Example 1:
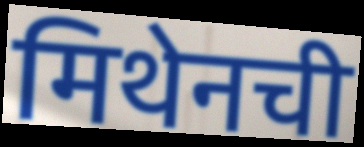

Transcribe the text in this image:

मिथेनची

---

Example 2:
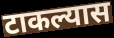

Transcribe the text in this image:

टाकल्यास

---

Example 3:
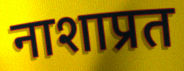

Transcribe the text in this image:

नाशाप्रत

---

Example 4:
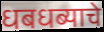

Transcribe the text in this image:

धबधब्याचे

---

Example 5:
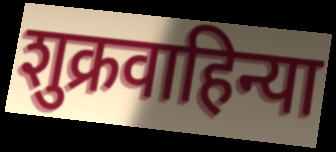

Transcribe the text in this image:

शुक्रवाहिन्या